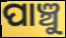
ପାଞ୍ଚୁ